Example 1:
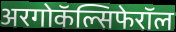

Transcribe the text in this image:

अरगोकॅल्सिफेरॉल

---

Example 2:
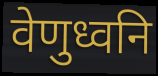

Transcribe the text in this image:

वेणुध्वनि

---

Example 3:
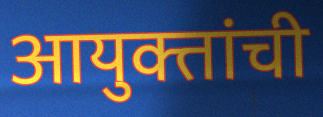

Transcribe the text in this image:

आयुक्तांची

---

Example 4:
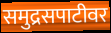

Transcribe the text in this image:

समुद्रसपाटीवर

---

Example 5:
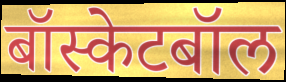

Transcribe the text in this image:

बॉस्केटबॉल